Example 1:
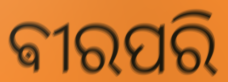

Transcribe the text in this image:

ଵୀରପରି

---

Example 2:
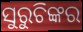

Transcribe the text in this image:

ସୁରୁଚିଙ୍କର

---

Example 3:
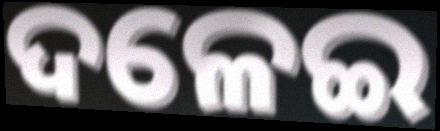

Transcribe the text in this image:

ଦଳେଇ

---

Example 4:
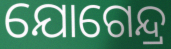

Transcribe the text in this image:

ଯୋଗେନ୍ଦ୍ର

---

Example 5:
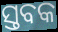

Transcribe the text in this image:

ସ୍ତବକ